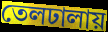
তেলঢালায়